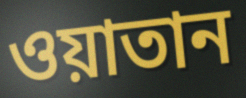
ওয়াতান